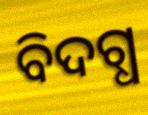
ବିଦଗ୍ଧ